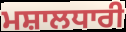
ਮਸ਼ਾਲਧਾਰੀ